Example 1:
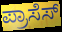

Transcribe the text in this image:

ಪ್ರಾಸೆಸ್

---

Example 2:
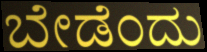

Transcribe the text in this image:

ಬೇಡೆಂದು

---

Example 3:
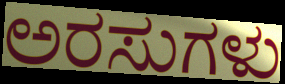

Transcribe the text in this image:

ಅರಸುಗಳು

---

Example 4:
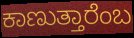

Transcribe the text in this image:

ಕಾಣುತ್ತಾರೆಂಬ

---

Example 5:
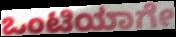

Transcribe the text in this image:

ಒಂಟಿಯಾಗೇ